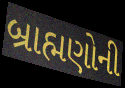
બ્રાહ્મણોની